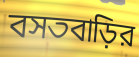
বসতবাড়ির